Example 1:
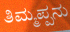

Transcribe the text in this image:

ತಿಮ್ಮಪ್ಪನು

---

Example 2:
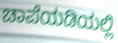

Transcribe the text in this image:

ಚಾಪೆಯಡಿಯಲ್ಲಿ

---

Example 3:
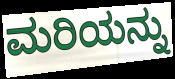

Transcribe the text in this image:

ಮರಿಯನ್ನು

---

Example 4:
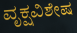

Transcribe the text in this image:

ವೃಕ್ಷವಿಶೇಷ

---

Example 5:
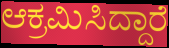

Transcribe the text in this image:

ಆಕ್ರಮಿಸಿದ್ದಾರೆ